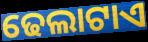
ଢେଲାଟାଏ